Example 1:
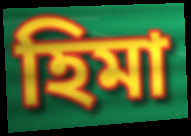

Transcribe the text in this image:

হিমা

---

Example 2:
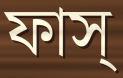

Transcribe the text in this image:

ফাস্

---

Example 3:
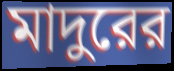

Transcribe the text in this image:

মাদুরের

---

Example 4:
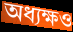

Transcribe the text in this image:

অধ্যক্ষও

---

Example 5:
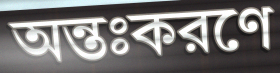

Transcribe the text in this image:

অন্তঃকরণে